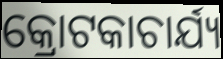
କ୍ରୋଟକାଚାର୍ଯ୍ୟ